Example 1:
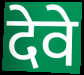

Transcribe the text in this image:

देवे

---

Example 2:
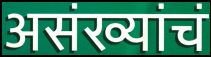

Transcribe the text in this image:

असंख्यांचं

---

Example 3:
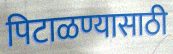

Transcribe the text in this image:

पिटाळण्यासाठी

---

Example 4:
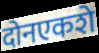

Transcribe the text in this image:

दोनएकशे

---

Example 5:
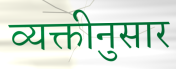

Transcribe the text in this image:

व्यक्तीनुसार